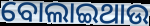
ବୋଲାଇଥାଉ